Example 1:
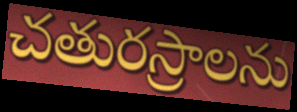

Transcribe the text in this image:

చతురస్రాలను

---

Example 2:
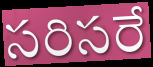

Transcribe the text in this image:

సరిసరే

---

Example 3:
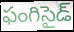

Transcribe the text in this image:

ఫంగిసైడ్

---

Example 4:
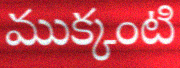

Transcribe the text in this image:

ముక్కంటి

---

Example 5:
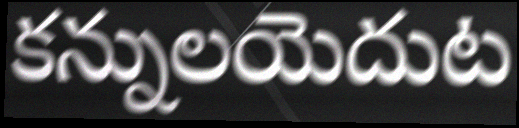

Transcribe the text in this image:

కన్నులయెదుట